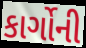
કાર્ગોની